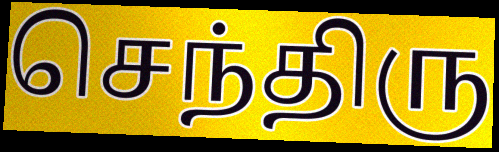
செந்திரு